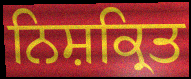
ਨਿਸ਼ਕ੍ਰਿਤ